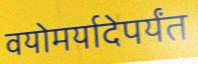
वयोमर्यादेपर्यंत